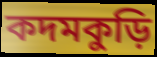
কদমকুড়ি